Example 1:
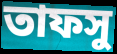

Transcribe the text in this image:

তাফসু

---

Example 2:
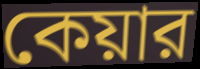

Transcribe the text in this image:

কেয়ার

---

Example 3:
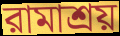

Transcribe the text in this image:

রামাশ্রয়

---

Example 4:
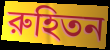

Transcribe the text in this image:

রুহিতন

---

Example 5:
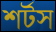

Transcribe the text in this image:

শর্টস